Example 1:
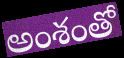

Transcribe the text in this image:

అంశంతో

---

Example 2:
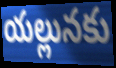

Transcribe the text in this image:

యల్లునకు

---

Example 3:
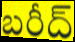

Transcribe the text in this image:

బరీద్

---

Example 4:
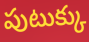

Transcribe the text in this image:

పుటుక్కు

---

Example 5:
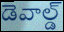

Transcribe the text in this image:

డెవాల్డ్